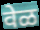
वेळ